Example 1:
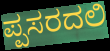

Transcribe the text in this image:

ಪ್ಪಸರದಲಿ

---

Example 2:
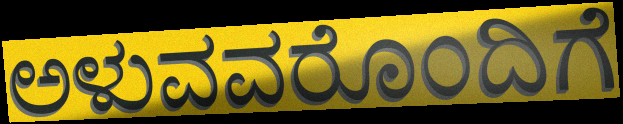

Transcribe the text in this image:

ಅಳುವವರೊಂದಿಗೆ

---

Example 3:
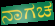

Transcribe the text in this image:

ನಾಗಚ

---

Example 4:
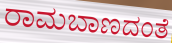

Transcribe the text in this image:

ರಾಮಬಾಣದಂತೆ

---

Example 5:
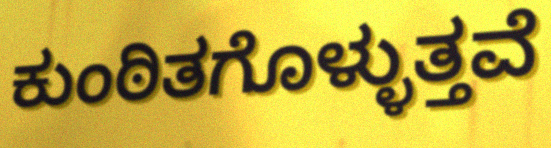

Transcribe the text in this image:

ಕುಂಠಿತಗೊಳ್ಳುತ್ತವೆ